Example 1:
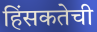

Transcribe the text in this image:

हिंसकतेची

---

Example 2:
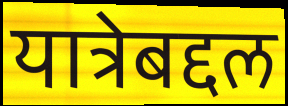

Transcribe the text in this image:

यात्रेबद्दल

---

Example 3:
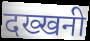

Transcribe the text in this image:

दख्खनी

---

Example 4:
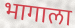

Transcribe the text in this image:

भागाला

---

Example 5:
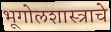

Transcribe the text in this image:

भूगोलशास्त्राचे